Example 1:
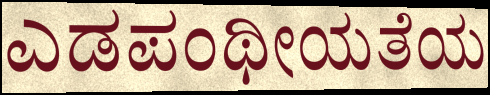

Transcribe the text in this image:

ಎಡಪಂಥೀಯತೆಯ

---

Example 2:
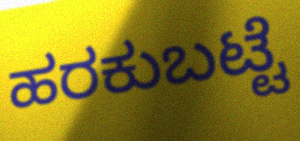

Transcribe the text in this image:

ಹರಕುಬಟ್ಟೆ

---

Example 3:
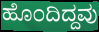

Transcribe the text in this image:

ಹೊಂದಿದ್ದವು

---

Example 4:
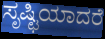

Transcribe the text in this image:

ಸೃಷ್ಟಿಯಾದರೆ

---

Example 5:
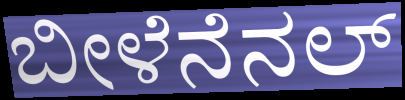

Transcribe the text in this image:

ಬೀಳೆನೆನಲ್